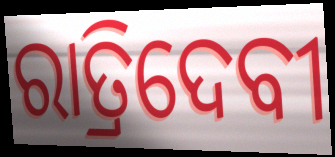
ରାତ୍ରିଦେବୀ